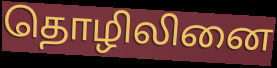
தொழிலினை